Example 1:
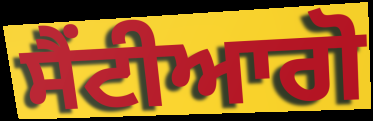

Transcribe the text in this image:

ਸੈਂਟੀਆਗੋ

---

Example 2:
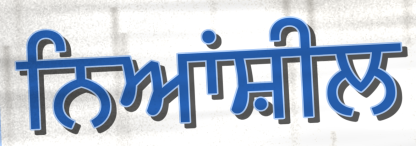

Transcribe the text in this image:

ਨਿਆਂਸ਼ੀਲ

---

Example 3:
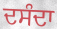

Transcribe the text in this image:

ਦਸੰਦਾ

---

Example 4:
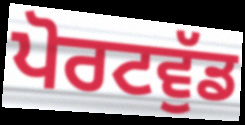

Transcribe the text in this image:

ਪੋਰਟਵੁੱਡ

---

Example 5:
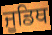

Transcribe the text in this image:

ਜੂਡਿਥ